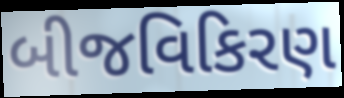
બીજવિકિરણ